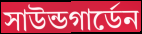
সাউন্ডগার্ডেন